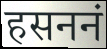
हसननं